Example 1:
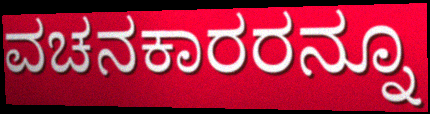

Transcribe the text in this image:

ವಚನಕಾರರನ್ನೂ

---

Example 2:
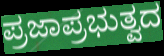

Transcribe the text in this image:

ಪ್ರಜಾಪ್ರಭುತ್ವದ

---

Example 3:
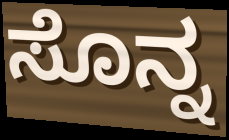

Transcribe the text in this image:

ಸೊನ್ನ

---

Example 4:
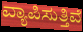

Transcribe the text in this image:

ವ್ಯಾಪಿಸುತ್ತಿವೆ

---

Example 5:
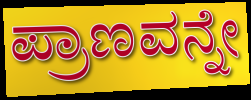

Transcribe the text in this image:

ಪ್ರಾಣವನ್ನೇ